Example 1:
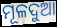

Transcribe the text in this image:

ମୂଳଦୁଆ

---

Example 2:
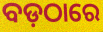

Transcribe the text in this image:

ବଡ଼ଠାରେ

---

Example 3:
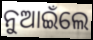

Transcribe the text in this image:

ନୁଆଇଁଲେ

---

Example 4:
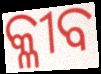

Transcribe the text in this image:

କ୍ଳୀବ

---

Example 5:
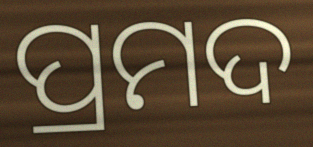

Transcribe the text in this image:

ପ୍ରମଦ